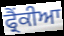
ਫ੍ਰੈਂਕੀਆ